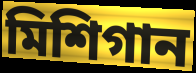
মিশিগান